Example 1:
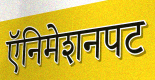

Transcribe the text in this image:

ऍनिमेशनपट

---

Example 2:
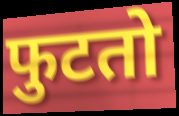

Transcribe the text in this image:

फुटतो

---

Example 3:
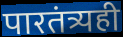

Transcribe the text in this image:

पारतंत्र्यही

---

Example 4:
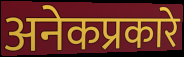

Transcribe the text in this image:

अनेकप्रकारे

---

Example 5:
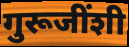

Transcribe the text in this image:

गुरूजींशी